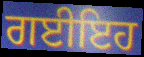
ਗਈਇਹ